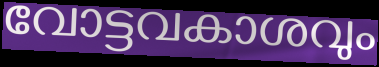
വോട്ടവകാശവും